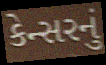
કેન્સરનું